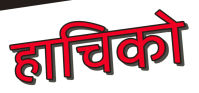
हाचिको